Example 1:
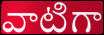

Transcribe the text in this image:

వాటిగా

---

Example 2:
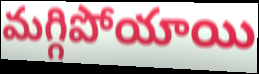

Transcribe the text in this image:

మగ్గిపోయాయి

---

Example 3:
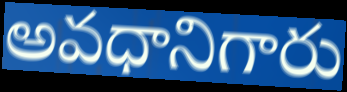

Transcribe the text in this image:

అవధానిగారు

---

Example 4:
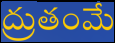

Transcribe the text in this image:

ద్రుతంమే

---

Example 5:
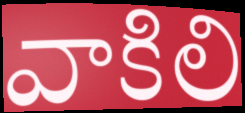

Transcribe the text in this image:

వాకిలి